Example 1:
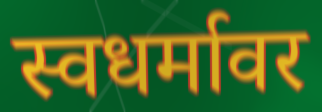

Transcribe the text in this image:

स्वधर्मावर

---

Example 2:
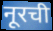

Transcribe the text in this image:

नूरची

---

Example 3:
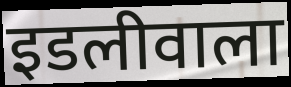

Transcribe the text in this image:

इडलीवाला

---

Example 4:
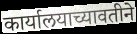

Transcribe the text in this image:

कार्यालयाच्यावतीने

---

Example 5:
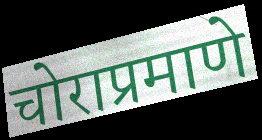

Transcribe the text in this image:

चोराप्रमाणे